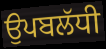
ਉਪਬਲੱਧੀ